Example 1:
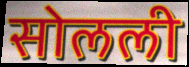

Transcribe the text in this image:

सोलली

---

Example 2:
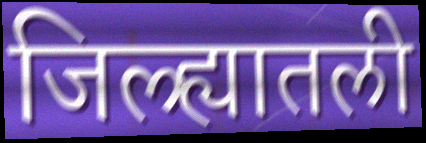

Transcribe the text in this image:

जिल्ह्यातली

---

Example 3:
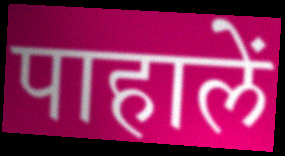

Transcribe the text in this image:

पाहालें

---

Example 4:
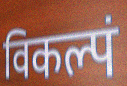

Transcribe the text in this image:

विकल्पं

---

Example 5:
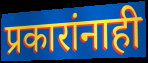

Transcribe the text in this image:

प्रकारांनाही